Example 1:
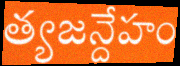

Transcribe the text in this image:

త్యజన్దేహం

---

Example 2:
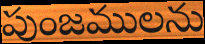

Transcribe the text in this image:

పుంజములను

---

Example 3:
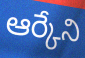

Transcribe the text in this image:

ఆర్కేని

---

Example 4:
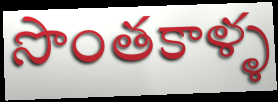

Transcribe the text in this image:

సొంతకాళ్ళ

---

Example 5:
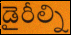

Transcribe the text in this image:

డైరీల్ని